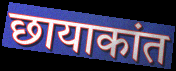
छायाकांत